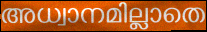
അധ്വാനമില്ലാതെ